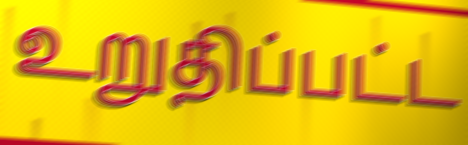
உறுதிப்பட்ட